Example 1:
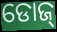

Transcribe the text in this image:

ଡୋଜ୍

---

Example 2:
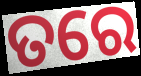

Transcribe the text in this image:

ତରେ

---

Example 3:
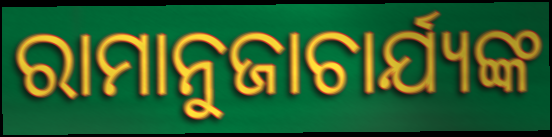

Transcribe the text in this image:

ରାମାନୁଜାଚାର୍ଯ୍ୟଙ୍କ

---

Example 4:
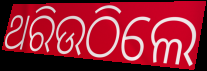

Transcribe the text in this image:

ଥରିଉଠିଲେ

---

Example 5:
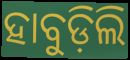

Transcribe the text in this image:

ହାବୁଡ଼ିଲି